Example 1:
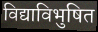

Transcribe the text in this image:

विद्याविभुषित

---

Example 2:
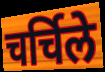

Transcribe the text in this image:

चर्चिले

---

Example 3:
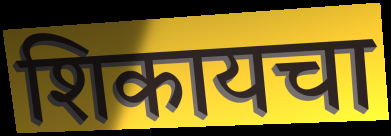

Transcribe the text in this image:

शिकायचा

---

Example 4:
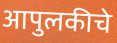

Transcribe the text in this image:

आपुलकीचे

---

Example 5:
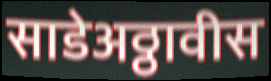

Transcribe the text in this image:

साडेअठ्ठावीस